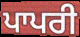
ਪਾਪਰੀ